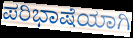
ಪರಿಭಾಷೆಯಾಗಿ